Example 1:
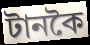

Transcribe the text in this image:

টানকৈ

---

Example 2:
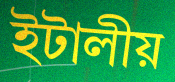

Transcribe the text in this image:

ইটালীয়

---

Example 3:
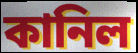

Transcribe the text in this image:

কানিল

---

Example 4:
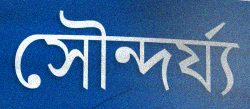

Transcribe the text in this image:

সৌন্দৰ্য্য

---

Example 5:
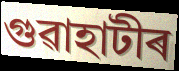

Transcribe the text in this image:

গুৱাহাটীৰ